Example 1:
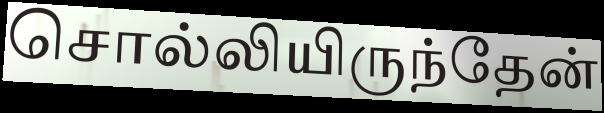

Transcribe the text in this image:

சொல்லியிருந்தேன்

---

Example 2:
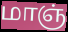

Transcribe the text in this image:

மாஞ்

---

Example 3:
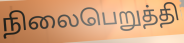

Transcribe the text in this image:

நிலைபெறுத்தி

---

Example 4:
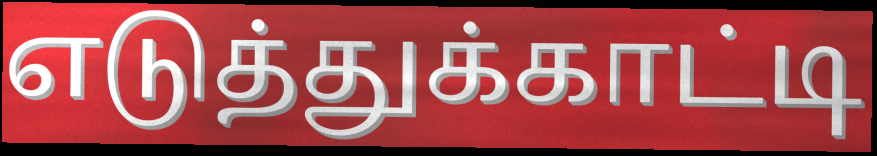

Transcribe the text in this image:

எடுத்துக்காட்டி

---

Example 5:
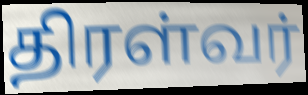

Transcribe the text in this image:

திரள்வர்